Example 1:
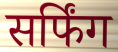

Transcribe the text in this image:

सर्फिंग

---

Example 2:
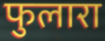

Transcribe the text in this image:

फुलारा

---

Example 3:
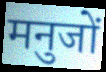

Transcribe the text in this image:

मनुजों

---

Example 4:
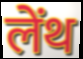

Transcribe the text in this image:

लेंथ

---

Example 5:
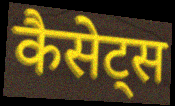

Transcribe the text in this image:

कैसेट्स